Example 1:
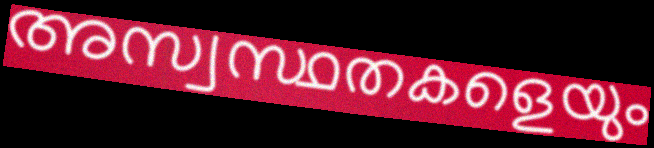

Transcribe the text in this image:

അസ്വസ്ഥതകളെയും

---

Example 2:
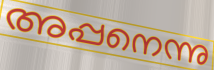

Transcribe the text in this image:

അപ്പനെന്നു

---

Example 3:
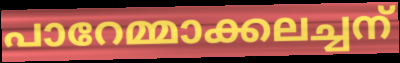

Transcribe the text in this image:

പാറേമ്മാക്കലച്ചന്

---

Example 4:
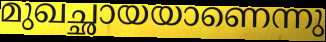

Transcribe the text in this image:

മുഖച്ഛായയാണെന്നു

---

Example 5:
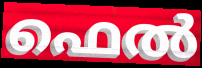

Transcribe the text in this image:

ഫെൽ